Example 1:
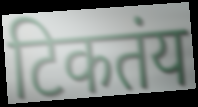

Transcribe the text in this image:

टिकतंय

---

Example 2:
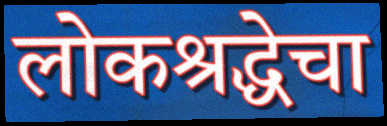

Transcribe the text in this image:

लोकश्रद्धेचा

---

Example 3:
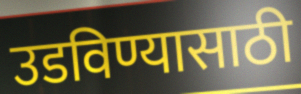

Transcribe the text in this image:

उडविण्यासाठी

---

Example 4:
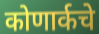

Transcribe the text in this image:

कोणार्कचे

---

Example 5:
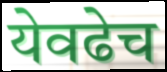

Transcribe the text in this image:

येवढेच